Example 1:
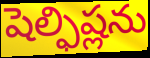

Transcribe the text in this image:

షెల్ఫిష్లను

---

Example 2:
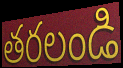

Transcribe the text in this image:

తరలండి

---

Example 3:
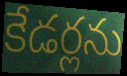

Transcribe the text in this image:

కేడర్లను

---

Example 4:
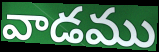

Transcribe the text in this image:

వాడము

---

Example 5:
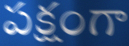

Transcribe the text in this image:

పక్షంగా